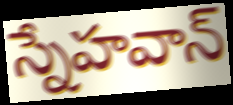
స్నేహవాన్